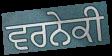
ਵਰਨੇਕੀ